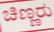
ಚಿಣ್ಣರು